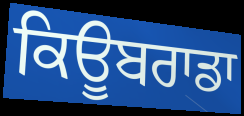
ਕਿਊਬਰਾਡਾ